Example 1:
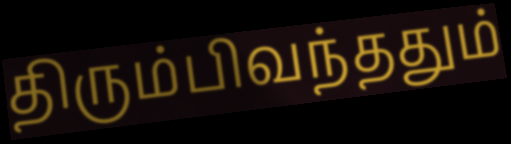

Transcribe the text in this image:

திரும்பிவந்ததும்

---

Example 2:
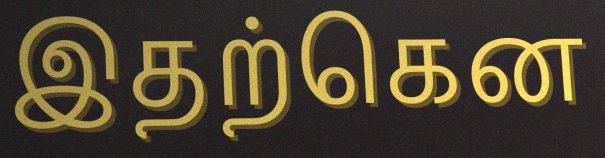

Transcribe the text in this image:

இதற்கென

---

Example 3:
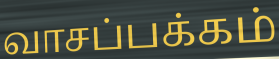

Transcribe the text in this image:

வாசப்பக்கம்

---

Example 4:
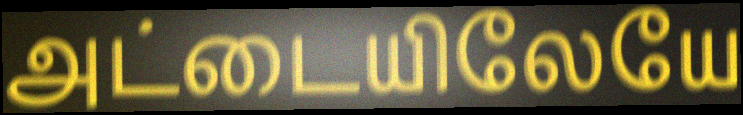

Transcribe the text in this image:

அட்டையிலேயே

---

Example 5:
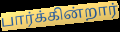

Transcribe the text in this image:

பார்க்கின்றார்